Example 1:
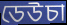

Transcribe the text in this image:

ডেউচা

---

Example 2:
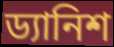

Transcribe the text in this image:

ড্যানিশ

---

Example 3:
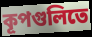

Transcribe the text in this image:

কূপগুলিতে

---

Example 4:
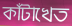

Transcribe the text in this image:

কাঁটাখেত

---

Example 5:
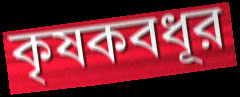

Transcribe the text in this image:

কৃষকবধূর